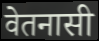
वेतनासी